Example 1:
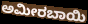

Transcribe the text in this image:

ಅಮೀರಬಾಯಿ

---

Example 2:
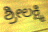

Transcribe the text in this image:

ಶ್ರೀಲಕ್ಷ್ಮಿ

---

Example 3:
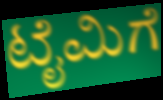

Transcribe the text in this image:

ಟೈಮಿಗೆ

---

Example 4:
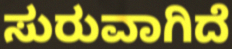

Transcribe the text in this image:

ಸುರುವಾಗಿದೆ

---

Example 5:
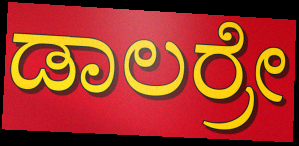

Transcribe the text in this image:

ಡಾಲರ್ರೇ